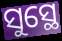
ସୁସ୍ଥେ